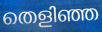
തെളിഞ്ഞ